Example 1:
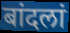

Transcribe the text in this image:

बांदलां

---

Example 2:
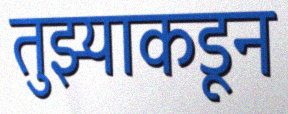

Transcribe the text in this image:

तुझ्याकडून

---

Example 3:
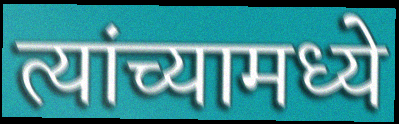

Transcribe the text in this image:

त्यांच्यामध्ये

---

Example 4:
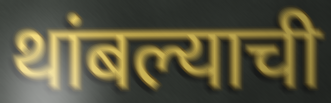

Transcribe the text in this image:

थांबल्याची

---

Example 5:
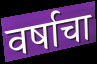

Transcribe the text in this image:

वर्षाचा